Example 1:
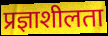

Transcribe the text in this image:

प्रज्ञाशीलता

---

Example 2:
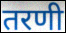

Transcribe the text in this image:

तरणी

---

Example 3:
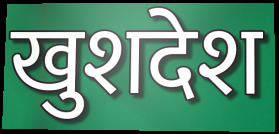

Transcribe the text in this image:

खुशदेश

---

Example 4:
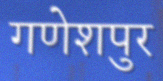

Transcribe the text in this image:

गणेशपुर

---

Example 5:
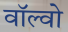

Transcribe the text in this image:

वॉल्‍वो